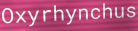
Oxyrhynchus